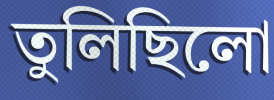
তুলিছিলো